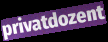
privatdozent